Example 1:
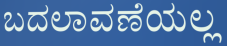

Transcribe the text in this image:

ಬದಲಾವಣೆಯಲ್ಲ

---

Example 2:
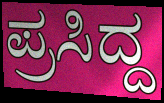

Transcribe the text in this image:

ಪ್ರಸಿದ್ದ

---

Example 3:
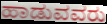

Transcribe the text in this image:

ಹಾಡುವವರು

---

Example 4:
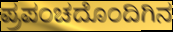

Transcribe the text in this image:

ಪ್ರಪಂಚದೊಂದಿಗಿನ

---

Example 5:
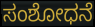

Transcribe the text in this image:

ಸಂಶೋಧನೆ